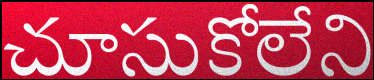
చూసుకోలేని